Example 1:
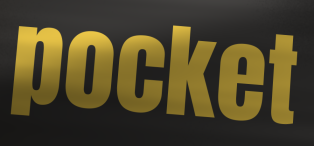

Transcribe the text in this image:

pocket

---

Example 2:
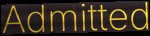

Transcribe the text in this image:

Admitted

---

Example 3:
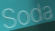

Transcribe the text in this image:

Soda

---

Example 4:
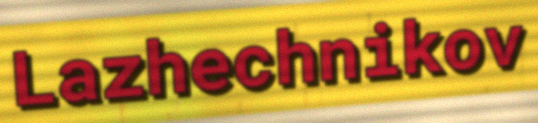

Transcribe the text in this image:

Lazhechnikov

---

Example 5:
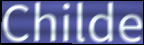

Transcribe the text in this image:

Childe